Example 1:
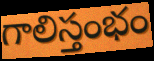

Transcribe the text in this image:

గాలిస్తంభం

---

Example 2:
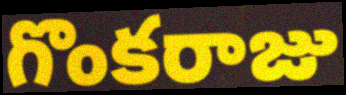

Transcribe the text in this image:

గొంకరాజు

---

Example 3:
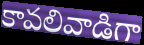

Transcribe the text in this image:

కావలివాడిగా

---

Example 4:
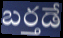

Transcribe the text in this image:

బర్తడే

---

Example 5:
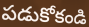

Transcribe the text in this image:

పడుకోకండి